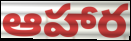
ఆహార